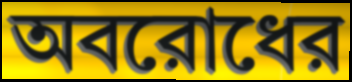
অবরোধের